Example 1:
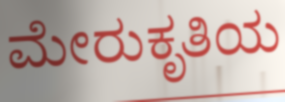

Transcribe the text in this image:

ಮೇರುಕೃತಿಯ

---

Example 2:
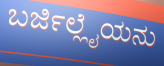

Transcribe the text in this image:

ಬರ್ಜಿಲ್ಲೈಯನು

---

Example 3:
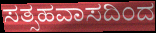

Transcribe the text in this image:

ಸತ್ಸಹವಾಸದಿಂದ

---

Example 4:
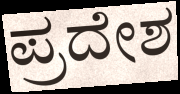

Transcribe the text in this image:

ಪ್ರದೇಶ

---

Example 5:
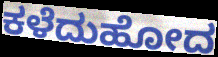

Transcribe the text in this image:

ಕಳೆದುಹೋದ